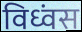
विध्वंस